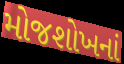
મોજશોખનાં